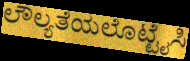
ಲೌಲ್ಯತೆಯಲೊಟ್ಟೈಸಿ